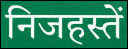
निजहस्तें